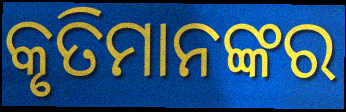
କୃତିମାନଙ୍କର